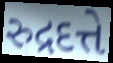
રુદ્રદત્તે